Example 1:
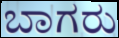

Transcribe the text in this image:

ಬಾಗರು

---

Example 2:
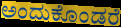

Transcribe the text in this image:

ಅಂದುಕೊಂಡರೆ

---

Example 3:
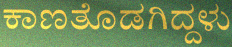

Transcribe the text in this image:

ಕಾಣತೊಡಗಿದ್ದಳು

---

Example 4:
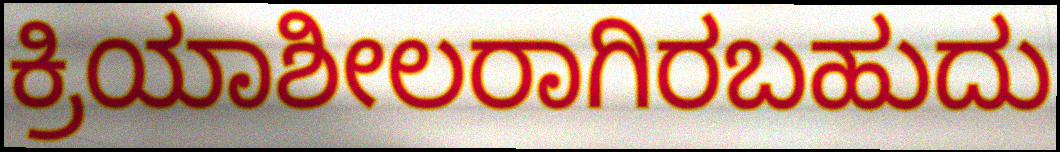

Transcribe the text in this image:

ಕ್ರಿಯಾಶೀಲರಾಗಿರಬಹುದು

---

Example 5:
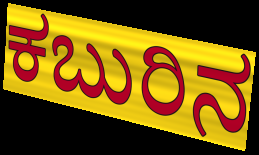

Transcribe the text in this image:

ಕಬುರಿನ